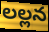
లల్లన